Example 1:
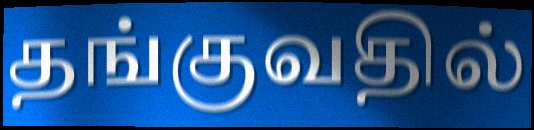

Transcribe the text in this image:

தங்குவதில்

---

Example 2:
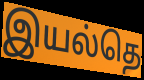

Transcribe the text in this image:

இயல்தெ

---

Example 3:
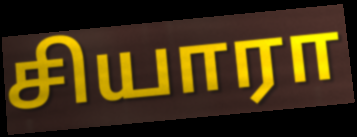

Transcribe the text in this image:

சியாரா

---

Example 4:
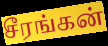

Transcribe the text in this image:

சீரங்கன்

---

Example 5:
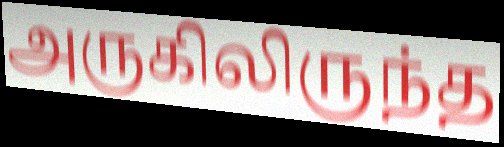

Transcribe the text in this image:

அருகிலிருந்த